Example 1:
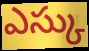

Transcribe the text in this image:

ఎస్కు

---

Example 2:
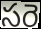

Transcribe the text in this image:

సరె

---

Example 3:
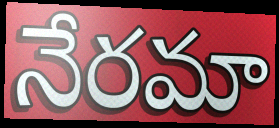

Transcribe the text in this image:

నేరమా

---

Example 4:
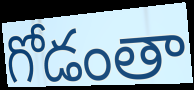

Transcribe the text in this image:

గోడంతా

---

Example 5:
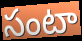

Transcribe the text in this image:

సంటా